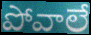
పోవాలే